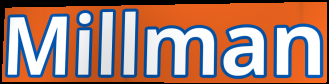
Millman